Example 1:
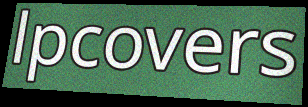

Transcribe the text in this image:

lpcovers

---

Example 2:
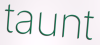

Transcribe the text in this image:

taunt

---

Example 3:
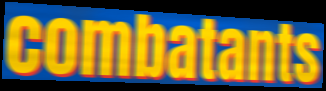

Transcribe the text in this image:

combatants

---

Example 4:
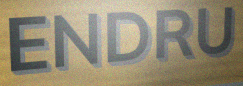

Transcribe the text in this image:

ENDRU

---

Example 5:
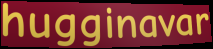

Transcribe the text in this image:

hugginavar